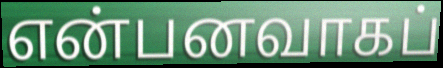
என்பனவாகப்